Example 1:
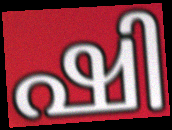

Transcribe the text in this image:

ഷി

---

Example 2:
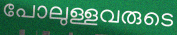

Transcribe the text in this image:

പോലുള്ളവരുടെ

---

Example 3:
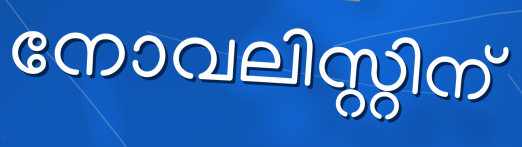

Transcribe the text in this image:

നോവലിസ്റ്റിന്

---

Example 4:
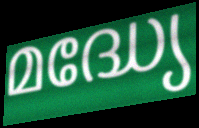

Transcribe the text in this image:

മദ്ധ്യേ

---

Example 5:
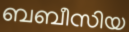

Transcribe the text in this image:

ബബീസിയ